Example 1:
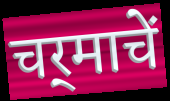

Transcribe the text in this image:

चर्माचें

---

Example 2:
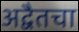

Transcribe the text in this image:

अद्वैतचा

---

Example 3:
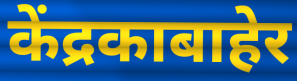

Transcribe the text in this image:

केंद्रकाबाहेर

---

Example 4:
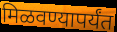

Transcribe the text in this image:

मिळवण्यापर्यंत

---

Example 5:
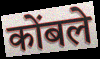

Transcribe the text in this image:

कोंबले